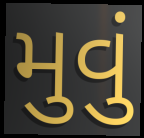
મુવું